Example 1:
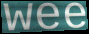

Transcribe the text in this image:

wee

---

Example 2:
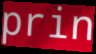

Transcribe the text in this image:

prin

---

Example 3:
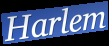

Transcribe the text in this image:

Harlem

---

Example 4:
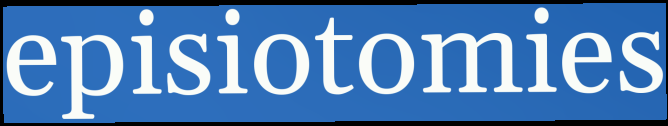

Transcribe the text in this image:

episiotomies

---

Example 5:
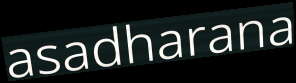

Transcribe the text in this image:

asadharana